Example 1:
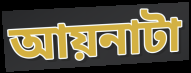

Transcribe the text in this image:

আয়নাটা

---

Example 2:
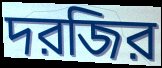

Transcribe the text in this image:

দরজির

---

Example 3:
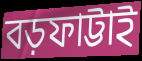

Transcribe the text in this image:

বড়ফাট্টাই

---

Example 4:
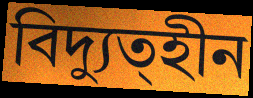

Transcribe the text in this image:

বিদ্যুত্হীন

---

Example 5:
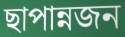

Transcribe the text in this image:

ছাপান্নজন